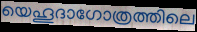
യെഹൂദാഗോത്രത്തിലെ